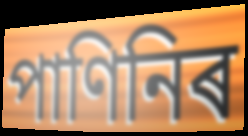
পাণিনিৰ